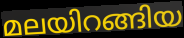
മലയിറങ്ങിയ